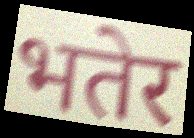
भतेर